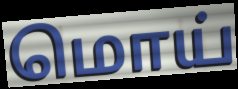
மொய்